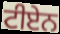
ਟੀਏਨ